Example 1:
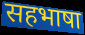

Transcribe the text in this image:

सहभाषा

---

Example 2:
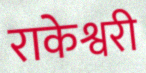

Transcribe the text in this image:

राकेश्वरी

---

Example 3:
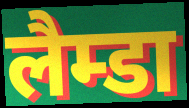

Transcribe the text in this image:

लैम्डा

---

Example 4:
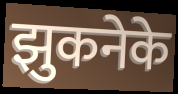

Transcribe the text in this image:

झुकनेके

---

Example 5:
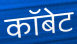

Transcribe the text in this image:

कॉबेट